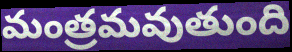
మంత్రమవుతుంది